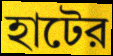
হাটের